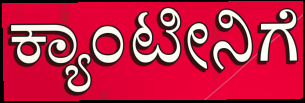
ಕ್ಯಾಂಟೀನಿಗೆ